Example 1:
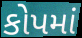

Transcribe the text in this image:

કોપમાં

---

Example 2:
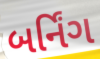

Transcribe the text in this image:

બર્નિંગ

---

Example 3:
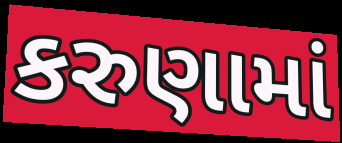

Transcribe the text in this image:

કરુણામાં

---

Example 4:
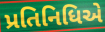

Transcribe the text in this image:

પ્રતિનિધિએ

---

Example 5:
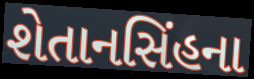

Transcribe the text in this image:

શેતાનસિંહના